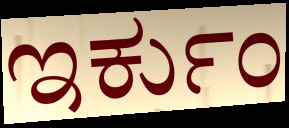
ಇರ್ಕುಂ